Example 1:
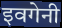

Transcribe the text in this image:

इवगेनी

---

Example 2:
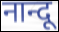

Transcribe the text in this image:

नान्दू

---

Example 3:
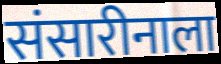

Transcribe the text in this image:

संसारीनाला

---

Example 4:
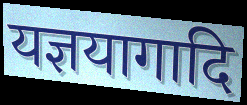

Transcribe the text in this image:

यज्ञयागादि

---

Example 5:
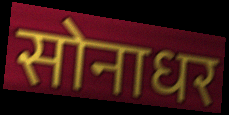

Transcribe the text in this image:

सोनाधर